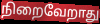
நிறைவேறாது